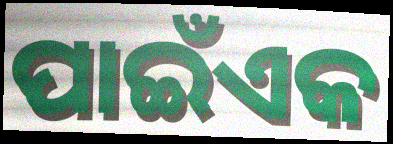
ପାଇଁଏକ